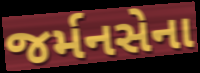
જર્મનસેના